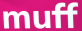
muff